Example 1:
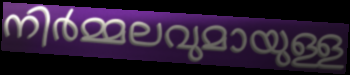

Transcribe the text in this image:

നിർമ്മലവുമായുള്ള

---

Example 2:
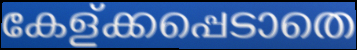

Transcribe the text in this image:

കേള്ക്കപ്പെടാതെ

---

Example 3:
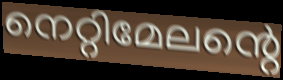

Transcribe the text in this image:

നെറ്റിമേലന്റെ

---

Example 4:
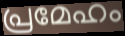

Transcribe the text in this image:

പ്രമേഹം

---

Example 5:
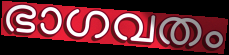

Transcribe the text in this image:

ഭാഗവതം